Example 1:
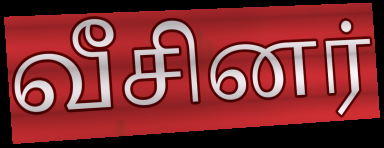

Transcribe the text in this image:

வீசினர்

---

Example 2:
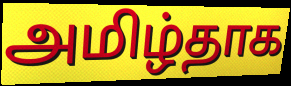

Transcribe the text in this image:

அமிழ்தாக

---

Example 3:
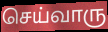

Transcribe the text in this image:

செய்வாரு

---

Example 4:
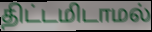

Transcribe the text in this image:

திட்டமிடாமல்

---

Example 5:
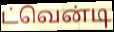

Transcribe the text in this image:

ட்வென்டி